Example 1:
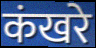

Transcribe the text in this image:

कंखरे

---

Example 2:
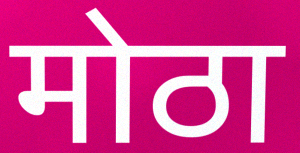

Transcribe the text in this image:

मोठा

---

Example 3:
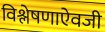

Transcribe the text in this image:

विश्लेषणाऐवजी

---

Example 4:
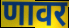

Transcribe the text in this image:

णावर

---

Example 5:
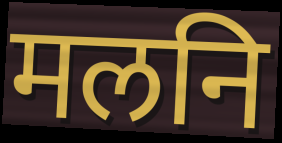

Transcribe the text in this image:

मलनि